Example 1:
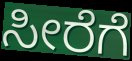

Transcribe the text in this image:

ಸೀರೆಗೆ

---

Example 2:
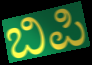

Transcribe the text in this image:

ಬಿಪಿ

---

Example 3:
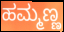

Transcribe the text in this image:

ಹಮ್ಮಣ್ಣ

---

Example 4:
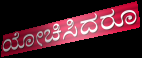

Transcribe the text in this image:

ಯೋಚಿಸಿದರೂ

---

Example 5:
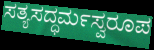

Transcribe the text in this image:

ಸತ್ಯಸದ್ಧರ್ಮಸ್ವರೂಪ